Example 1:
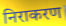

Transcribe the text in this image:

निराकरण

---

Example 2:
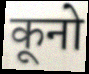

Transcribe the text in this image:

कूनो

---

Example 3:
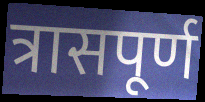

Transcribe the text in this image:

त्रासपूर्ण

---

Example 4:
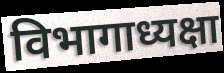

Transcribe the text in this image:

विभागाध्यक्षा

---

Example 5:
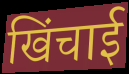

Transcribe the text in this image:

खिंचाई